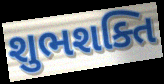
શુભશક્તિ